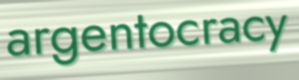
argentocracy